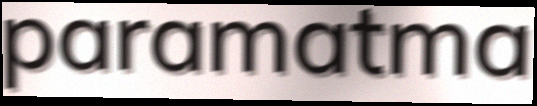
paramatma